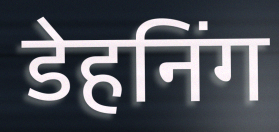
डेहनिंग